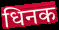
धिनक